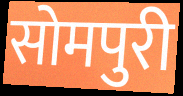
सोमपुरी